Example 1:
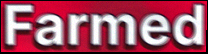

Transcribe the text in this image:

Farmed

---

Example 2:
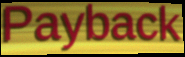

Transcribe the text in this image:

Payback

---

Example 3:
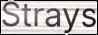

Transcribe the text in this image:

Strays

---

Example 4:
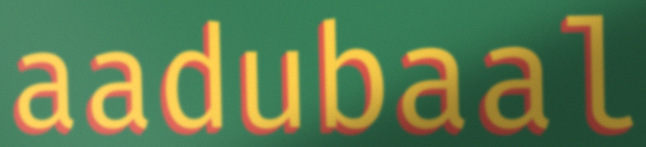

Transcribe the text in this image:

aadubaal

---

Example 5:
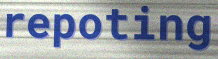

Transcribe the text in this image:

repoting